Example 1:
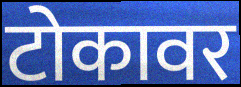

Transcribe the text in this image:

टोकावर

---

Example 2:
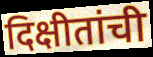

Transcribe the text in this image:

दिक्षीतांची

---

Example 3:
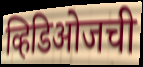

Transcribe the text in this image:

व्हिडिओजची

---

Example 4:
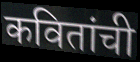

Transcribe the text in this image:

कवितांची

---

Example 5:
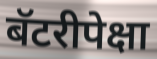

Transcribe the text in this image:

बॅटरीपेक्षा